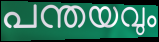
പന്തയവും